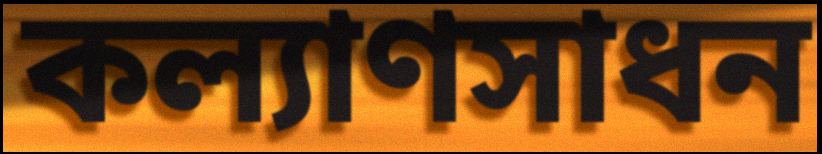
কল্যাণসাধন